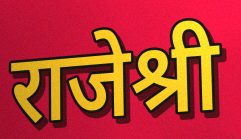
राजेश्री